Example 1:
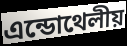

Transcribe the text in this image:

এন্ডোথেলীয়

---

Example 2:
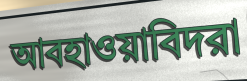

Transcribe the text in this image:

আবহাওয়াবিদরা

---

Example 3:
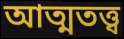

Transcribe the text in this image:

আত্মতত্ত্ব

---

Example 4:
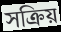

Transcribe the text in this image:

সক্রিয়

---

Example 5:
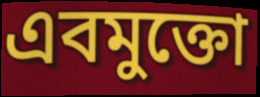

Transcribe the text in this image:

এবমুক্তো